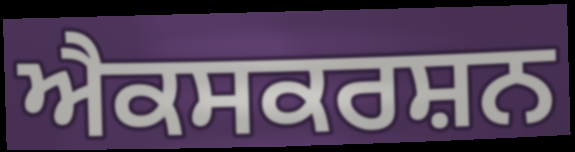
ਐਕਸਕਰਸ਼ਨ